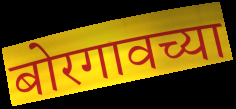
बोरगावच्या